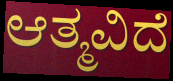
ಆತ್ಮವಿದೆ